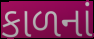
કાળનાં